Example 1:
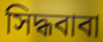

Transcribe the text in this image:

সিদ্ধবাবা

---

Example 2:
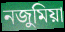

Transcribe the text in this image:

নজুমিয়া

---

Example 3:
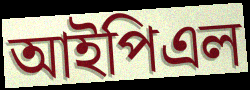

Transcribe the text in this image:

আইপিএল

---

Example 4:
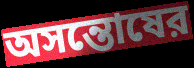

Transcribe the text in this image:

অসন্তোষের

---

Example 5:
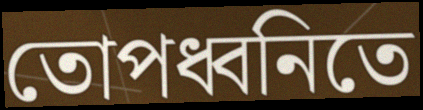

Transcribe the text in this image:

তোপধ্বনিতে